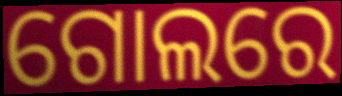
ଗୋଲରେ